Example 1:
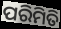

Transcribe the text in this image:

ପରିମିତି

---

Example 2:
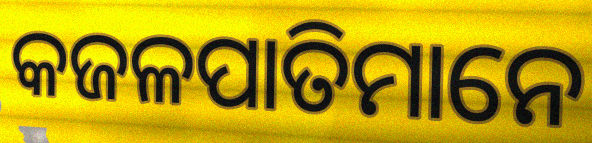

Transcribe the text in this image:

କଜଳପାତିମାନେ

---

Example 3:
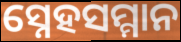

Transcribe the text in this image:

ସ୍ନେହସମ୍ମାନ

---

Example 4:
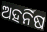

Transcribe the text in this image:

ଅହର୍ନିଷ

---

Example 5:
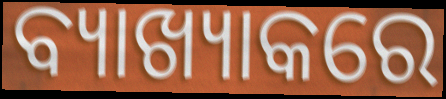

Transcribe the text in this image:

ବ୍ୟାଖ୍ୟାକରେ